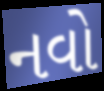
નવો